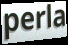
perla